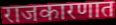
राजकारणात